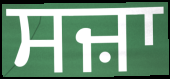
ਸਜ਼ਾ